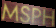
MSPH